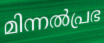
മിന്നൽപ്രഭ